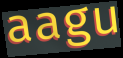
aagu